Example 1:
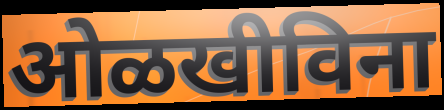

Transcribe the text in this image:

ओळखीविना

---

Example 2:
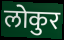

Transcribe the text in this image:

लोकुर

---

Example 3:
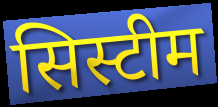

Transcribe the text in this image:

सिस्टीम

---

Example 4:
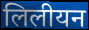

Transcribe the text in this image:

लिलीयन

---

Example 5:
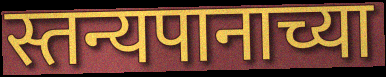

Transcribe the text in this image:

स्तन्यपानाच्या